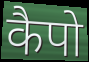
कैपो